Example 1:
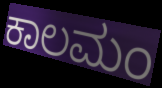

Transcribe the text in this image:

ಕಾಲಮಂ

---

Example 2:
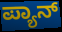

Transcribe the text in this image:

ಪ್ಯಾನ್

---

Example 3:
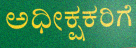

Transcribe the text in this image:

ಅಧೀಕ್ಷಕರಿಗೆ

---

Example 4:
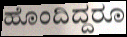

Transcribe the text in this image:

ಹೊಂದಿದ್ದರೂ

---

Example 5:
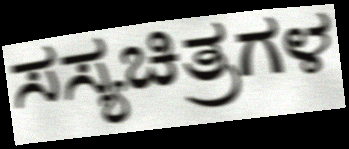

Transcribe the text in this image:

ಸಸ್ಯಚಿತ್ರಗಳ